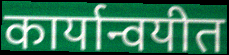
कार्यान्वयीत